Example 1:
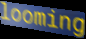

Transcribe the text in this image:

looming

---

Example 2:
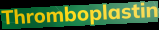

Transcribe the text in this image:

Thromboplastin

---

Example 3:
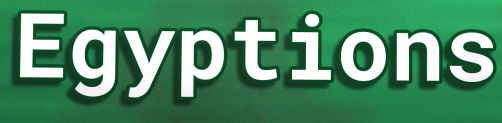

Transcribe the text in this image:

Egyptions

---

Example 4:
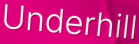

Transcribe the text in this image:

Underhill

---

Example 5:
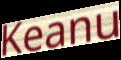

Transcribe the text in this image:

Keanu